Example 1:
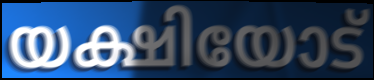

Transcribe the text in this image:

യക്ഷിയോട്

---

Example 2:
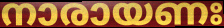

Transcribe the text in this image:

നാരായണഃ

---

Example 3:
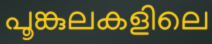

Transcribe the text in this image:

പൂങ്കുലകളിലെ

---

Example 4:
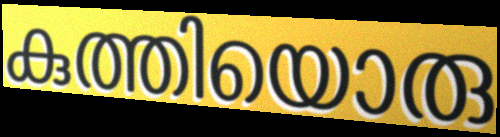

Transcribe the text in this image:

കുത്തിയൊരു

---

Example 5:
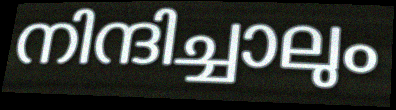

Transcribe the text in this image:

നിന്ദിച്ചാലും